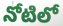
నోటిలో